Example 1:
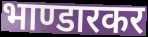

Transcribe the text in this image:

भाण्डारकर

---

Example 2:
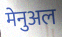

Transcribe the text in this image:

मेनुअल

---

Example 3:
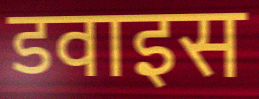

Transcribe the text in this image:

डवाइस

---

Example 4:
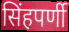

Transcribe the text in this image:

सिंहपर्णी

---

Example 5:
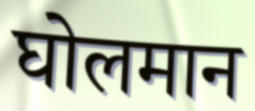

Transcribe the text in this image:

घोलमान